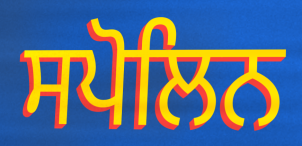
ਸਪੋਲਿਨ